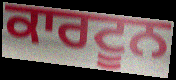
ਕਾਰਟੂਨ